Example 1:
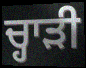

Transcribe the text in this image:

ਚ੍ਹਾੜੀ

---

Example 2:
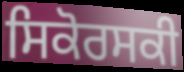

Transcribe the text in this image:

ਸਿਕੋਰਸਕੀ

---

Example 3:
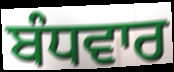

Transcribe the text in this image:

ਬੰਧਵਾਰ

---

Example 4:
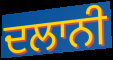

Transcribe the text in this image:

ਦਲਾਨੀ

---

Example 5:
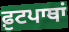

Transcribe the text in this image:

ਫ਼ੁਟਪਾਥਾਂ